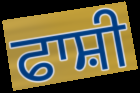
ਫਾਸ਼ੀ